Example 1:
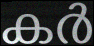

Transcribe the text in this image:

കർ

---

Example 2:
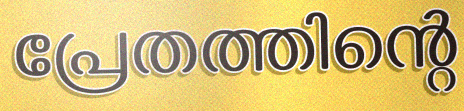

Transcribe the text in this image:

പ്രേതത്തിന്റെ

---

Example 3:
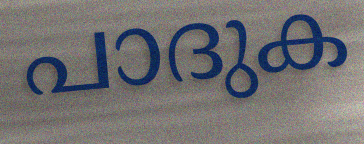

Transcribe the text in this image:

പാദുക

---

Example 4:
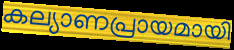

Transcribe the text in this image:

കല്യാണപ്രായമായി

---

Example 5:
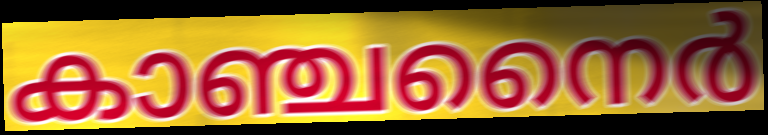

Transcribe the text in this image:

കാഞ്ചനൈർ